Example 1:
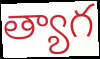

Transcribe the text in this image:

త్యాగ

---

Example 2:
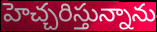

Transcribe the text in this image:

హెచ్చరిస్తున్నాను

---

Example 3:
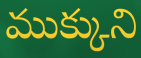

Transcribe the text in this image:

ముక్కుని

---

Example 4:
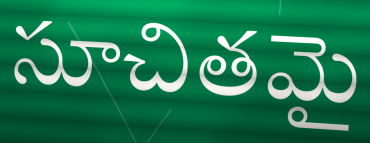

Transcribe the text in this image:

సూచితమై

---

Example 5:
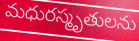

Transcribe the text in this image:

మధురస్మృతులను